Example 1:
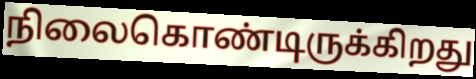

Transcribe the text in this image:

நிலைகொண்டிருக்கிறது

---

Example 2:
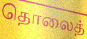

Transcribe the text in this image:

தொலைத்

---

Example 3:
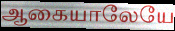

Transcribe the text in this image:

ஆகையாலேயே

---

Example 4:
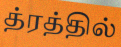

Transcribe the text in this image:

த்ரத்தில்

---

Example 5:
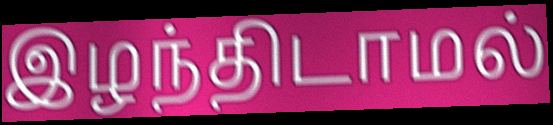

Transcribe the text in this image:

இழந்திடாமல்